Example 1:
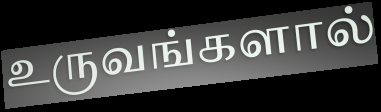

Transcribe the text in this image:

உருவங்களால்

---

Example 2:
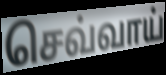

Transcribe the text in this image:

செவ்வாய்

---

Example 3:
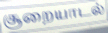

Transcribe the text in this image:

சூறையாடல்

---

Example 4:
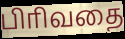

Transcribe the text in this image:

பிரிவதை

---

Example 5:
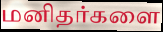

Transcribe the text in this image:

மனிதர்களை